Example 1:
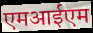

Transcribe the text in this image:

एमआईएम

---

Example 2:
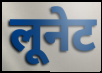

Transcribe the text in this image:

लूनेट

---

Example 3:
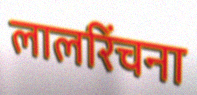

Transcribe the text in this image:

लालरिंचना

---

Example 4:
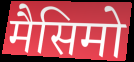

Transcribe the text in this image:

मैसिमो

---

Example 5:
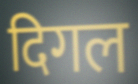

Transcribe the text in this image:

दिगल